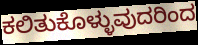
ಕಲಿತುಕೊಳ್ಳುವುದರಿಂದ